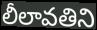
లీలావతిని